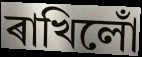
ৰাখিলোঁ